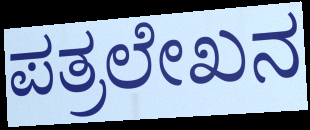
ಪತ್ರಲೇಖನ